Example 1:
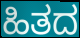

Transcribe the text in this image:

ಹಿತದ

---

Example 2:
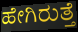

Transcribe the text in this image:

ಹೇಗಿರುತ್ತೆ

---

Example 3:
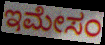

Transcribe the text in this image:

ಇಮೇಸಂ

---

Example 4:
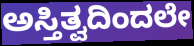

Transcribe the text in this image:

ಅಸ್ತಿತ್ವದಿಂದಲೇ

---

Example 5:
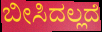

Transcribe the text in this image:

ಬೀಸಿದಲ್ಲದೆ